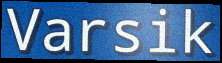
Varsik